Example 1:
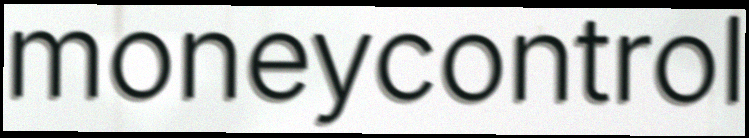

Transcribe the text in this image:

moneycontrol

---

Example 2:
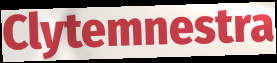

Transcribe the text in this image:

Clytemnestra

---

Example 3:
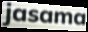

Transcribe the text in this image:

jasama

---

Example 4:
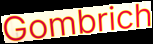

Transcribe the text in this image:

Gombrich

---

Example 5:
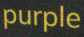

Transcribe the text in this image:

purple